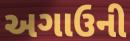
અગાઉની